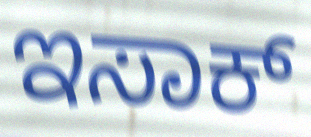
ಇಸಾಕ್